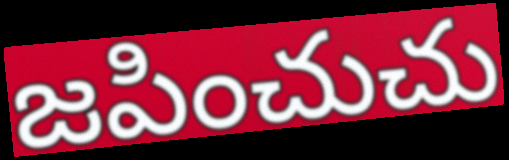
జపించుచు